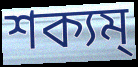
শক্যম্